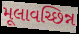
મૂલાવચ્છિન્ન